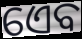
ଏେବ